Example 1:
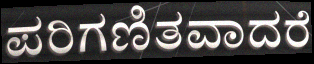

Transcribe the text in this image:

ಪರಿಗಣಿತವಾದರೆ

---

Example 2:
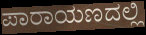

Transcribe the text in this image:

ಪಾರಾಯಣದಲ್ಲಿ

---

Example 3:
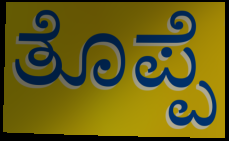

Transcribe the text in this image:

ತೊಪ್ಪೆ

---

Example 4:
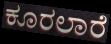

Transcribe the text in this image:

ಕೂರಲಾರೆ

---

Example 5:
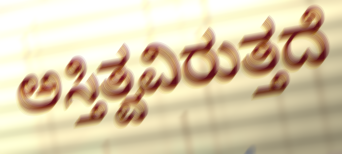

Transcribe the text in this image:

ಅಸ್ತಿತ್ವವಿರುತ್ತದೆ